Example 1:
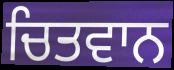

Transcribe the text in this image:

ਚਿਤਵਾਨ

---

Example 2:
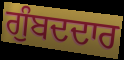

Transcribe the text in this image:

ਗੁੰਬਦਦਾਰ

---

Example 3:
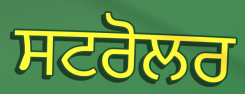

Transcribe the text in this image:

ਸਟਰੋਲਰ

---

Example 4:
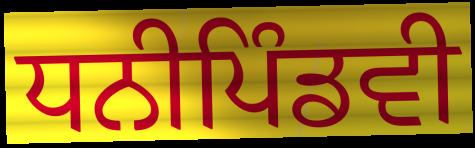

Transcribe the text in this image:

ਧਨੀਪਿੰਡਵੀ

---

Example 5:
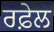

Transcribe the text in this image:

ਰਫ਼ੇਲ